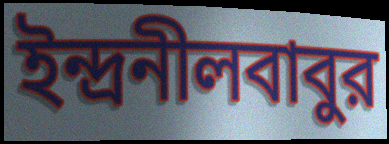
ইন্দ্রনীলবাবুর